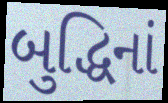
બુદ્ધિનાં